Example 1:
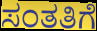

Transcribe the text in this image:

ಸಂತತಿಗೆ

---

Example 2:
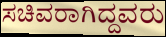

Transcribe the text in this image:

ಸಚಿವರಾಗಿದ್ದವರು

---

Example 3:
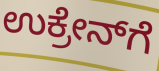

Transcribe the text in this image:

ಉಕ್ರೇನ್‌ಗೆ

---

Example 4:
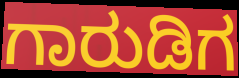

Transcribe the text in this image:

ಗಾರುಡಿಗ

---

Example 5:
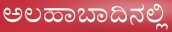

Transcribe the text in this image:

ಅಲಹಾಬಾದಿನಲ್ಲಿ